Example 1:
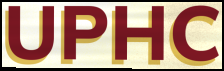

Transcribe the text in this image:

UPHC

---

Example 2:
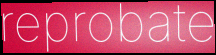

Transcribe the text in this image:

reprobate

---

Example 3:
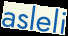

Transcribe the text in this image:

asleli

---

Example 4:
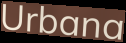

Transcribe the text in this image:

Urbana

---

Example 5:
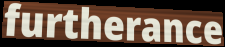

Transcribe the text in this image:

furtherance